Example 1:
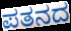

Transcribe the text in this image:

ಪತನದ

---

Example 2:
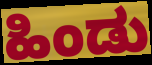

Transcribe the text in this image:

ಹಿಂಡು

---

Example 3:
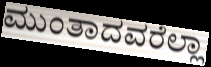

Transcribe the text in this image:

ಮುಂತಾದವರೆಲ್ಲಾ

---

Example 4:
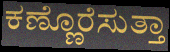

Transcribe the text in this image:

ಕಣ್ಣೊರೆಸುತ್ತಾ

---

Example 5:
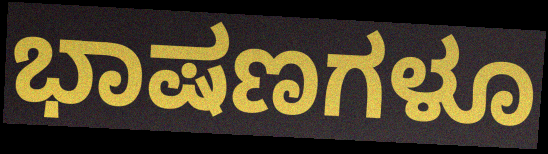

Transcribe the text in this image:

ಭಾಷಣಗಳೂ